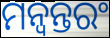
ମନ୍ବନ୍ତରଂ